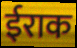
ईराक